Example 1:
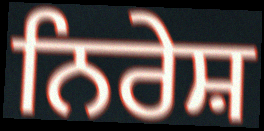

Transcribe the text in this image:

ਨਿਰੇਸ਼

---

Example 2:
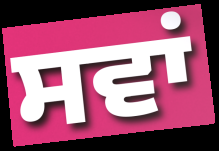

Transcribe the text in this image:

ਸਵਾਂ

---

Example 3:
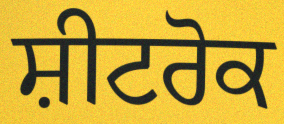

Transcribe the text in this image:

ਸ਼ੀਟਰੋਕ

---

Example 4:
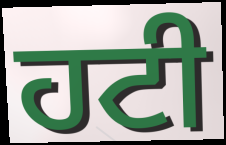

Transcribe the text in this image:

ਹਟੀ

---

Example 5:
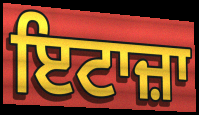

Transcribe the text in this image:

ਇਟਾਜ਼ਾ